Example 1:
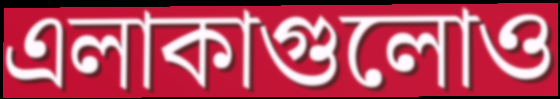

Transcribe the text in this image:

এলাকাগুলোও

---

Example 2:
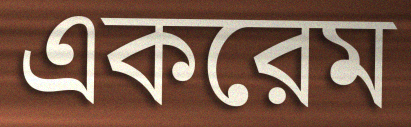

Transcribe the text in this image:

একরেম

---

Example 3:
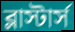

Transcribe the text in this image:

ব্লাস্টার্স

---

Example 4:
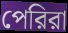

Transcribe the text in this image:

পেরিরা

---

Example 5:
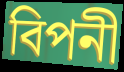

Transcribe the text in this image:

বিপনী